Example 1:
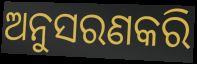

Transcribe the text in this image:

ଅନୁସରଣକରି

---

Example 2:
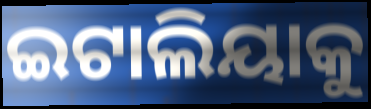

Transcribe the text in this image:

ଇଟାଲିୟାକୁ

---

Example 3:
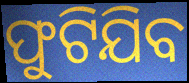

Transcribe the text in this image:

ଫୁଟିଯିବ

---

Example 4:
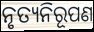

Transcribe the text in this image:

ନୃତ୍ୟନିରୂପଣ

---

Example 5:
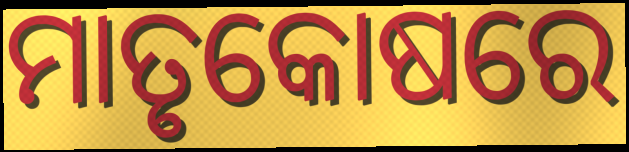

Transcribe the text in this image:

ମାତୃକୋଷରେ